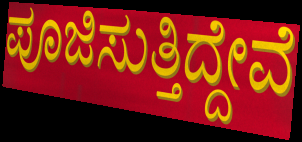
ಪೂಜಿಸುತ್ತಿದ್ದೇವೆ